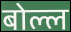
बोल्ल